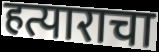
हत्याराचा